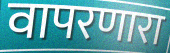
वापरणारा